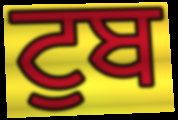
ਟੁਬ